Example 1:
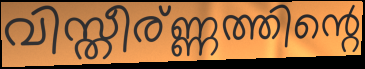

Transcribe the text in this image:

വിസ്തീര്ണ്ണത്തിന്റെ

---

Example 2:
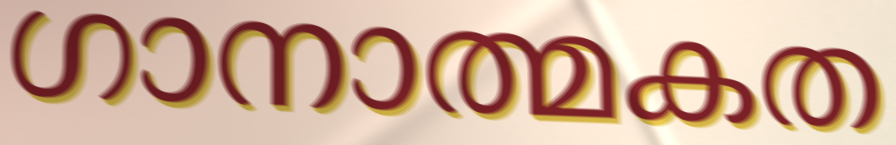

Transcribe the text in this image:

ഗാനാത്മകത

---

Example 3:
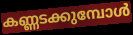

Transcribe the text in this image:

കണ്ണടക്കുമ്പോൾ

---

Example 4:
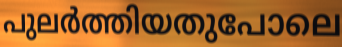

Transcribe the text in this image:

പുലർത്തിയതുപോലെ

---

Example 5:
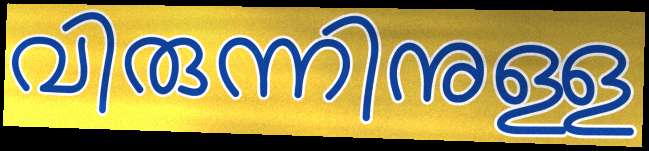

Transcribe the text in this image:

വിരുന്നിനുള്ള